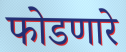
फोडणारे